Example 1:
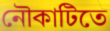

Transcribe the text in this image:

নৌকাটিতে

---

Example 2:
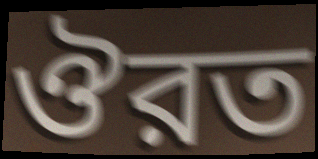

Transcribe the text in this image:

ঔরত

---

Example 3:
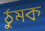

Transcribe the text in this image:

ঠুমক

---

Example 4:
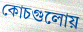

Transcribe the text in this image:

কোচগুলোয়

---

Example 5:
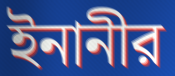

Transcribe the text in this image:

ইনানীর